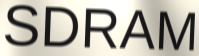
SDRAM